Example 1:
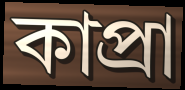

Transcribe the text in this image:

কাপ্রা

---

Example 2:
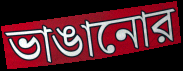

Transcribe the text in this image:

ভাঙানোর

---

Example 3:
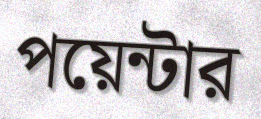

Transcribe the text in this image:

পয়েন্টার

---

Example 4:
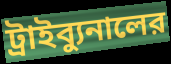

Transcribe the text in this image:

ট্রাইব্যুনালের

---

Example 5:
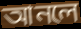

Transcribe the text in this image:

আনলে